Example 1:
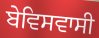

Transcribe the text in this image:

ਬੇਵਿਸਵਾਸੀ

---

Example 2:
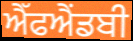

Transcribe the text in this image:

ਐੱਫਐਂਡਬੀ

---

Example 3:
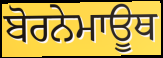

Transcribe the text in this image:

ਬੋਰਨੇਮਾਊਥ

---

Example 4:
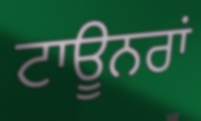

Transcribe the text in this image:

ਟਾਊਨਰਾਂ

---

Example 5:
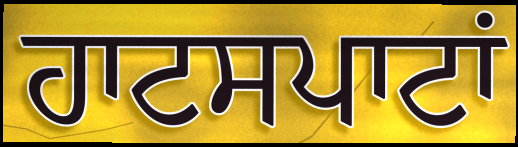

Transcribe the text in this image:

ਹਾਟਸਪਾਟਾਂ